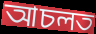
আচলত